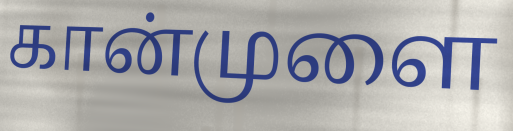
கான்முளை